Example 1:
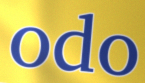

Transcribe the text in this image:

odo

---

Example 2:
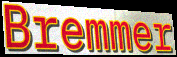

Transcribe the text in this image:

Bremmer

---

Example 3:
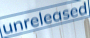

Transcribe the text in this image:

unreleased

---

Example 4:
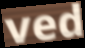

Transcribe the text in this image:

ved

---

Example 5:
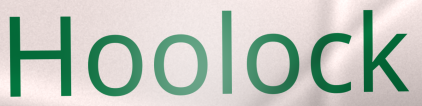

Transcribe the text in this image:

Hoolock